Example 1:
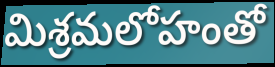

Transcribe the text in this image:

మిశ్రమలోహంతో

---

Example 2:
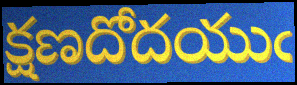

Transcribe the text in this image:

క్షణదోదయుఁ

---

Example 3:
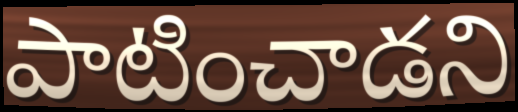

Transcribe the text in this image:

పాటించాడని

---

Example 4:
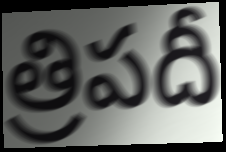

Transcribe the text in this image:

త్రిపదీ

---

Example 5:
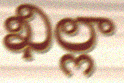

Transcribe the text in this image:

ఖిల్లా